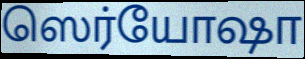
ஸெர்யோஷா